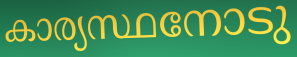
കാര്യസ്ഥനോടു